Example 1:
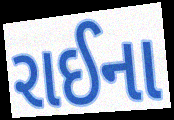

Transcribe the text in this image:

રાઈના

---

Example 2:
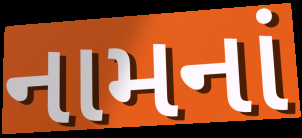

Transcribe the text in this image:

નામનાં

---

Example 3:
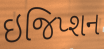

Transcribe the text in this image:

ઇજિપ્શન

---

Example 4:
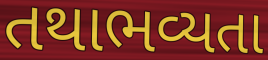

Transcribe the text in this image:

તથાભવ્યતા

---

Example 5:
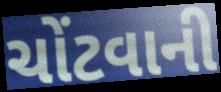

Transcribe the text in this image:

ચોંટવાની